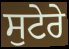
ਸੁਟੇਰੇ